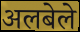
अलबेले